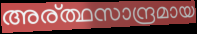
അര്ത്ഥസാന്ദ്രമായ